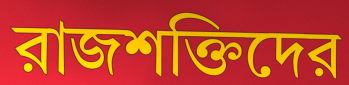
রাজশক্তিদের